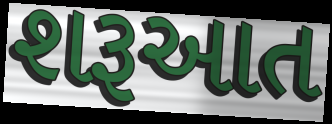
શરૂઆત